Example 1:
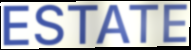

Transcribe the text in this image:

ESTATE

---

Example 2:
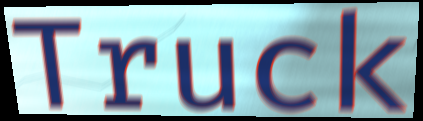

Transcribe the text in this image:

Truck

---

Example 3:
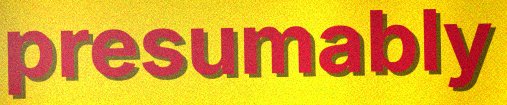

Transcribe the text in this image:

presumably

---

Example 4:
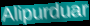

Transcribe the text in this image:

Alipurduar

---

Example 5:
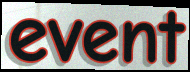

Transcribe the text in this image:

event